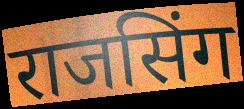
राजसिंग